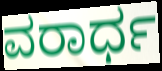
ವರಾರ್ಧ